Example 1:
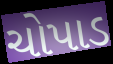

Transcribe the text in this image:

ચોપાડ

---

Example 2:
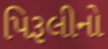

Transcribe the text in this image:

પિરૂલીનો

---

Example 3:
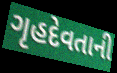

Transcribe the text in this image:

ગૃહદેવતાની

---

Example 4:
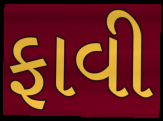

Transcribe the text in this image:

ફાવી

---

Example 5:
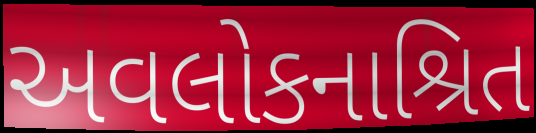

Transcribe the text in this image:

અવલોકનાશ્રિત